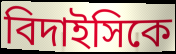
বিদাইসিকে